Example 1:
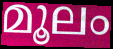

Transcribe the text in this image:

മൂലം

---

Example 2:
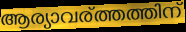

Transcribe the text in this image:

ആര്യാവര്ത്തത്തിന്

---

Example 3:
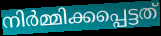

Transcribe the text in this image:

നിർമ്മിക്കപ്പെട്ടത്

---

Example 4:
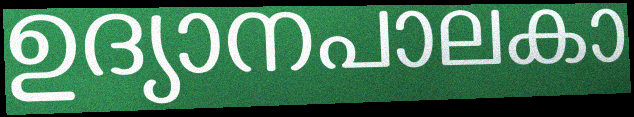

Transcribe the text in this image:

ഉദ്യാനപാലകാ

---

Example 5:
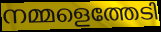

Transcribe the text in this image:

നമ്മളെത്തേടി